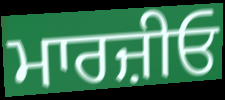
ਮਾਰਜ਼ੀਓ